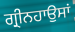
ਗ੍ਰੀਨਹਾਉਸਾਂ